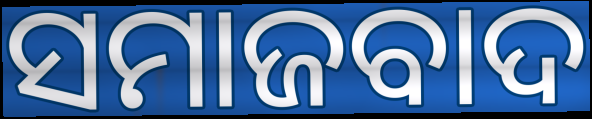
ସମାଜବାଦ